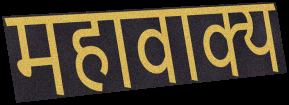
महावाक्य